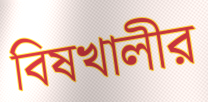
বিষখালীর